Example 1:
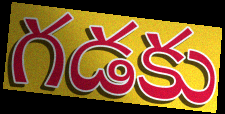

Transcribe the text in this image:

గడకు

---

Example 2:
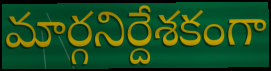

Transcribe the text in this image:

మార్గనిర్దేశకంగా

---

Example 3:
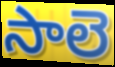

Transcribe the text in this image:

సాలె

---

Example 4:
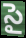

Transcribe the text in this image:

సై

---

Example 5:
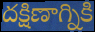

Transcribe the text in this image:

దక్షిణాగ్నికి